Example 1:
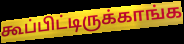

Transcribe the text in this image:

கூப்பிட்டிருக்காங்க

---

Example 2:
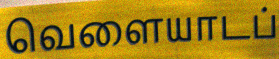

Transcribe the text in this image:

வெளையாடப்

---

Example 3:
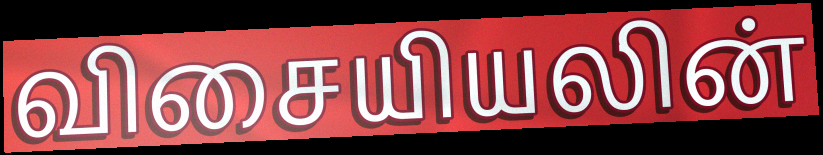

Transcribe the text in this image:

விசையியலின்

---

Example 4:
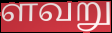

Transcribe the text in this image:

ளவறு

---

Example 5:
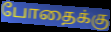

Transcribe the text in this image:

போதைக்கு